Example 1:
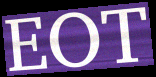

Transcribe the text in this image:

EOT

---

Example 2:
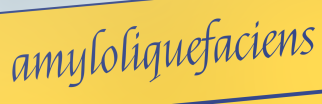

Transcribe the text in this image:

amyloliquefaciens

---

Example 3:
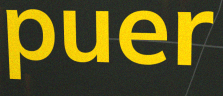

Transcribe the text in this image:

puer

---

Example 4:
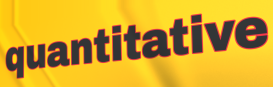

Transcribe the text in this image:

quantitative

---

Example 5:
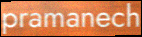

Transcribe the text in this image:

pramanech